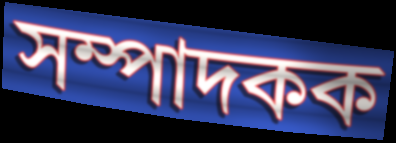
সম্পাদকক